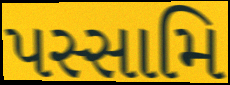
પસ્સામિ